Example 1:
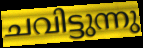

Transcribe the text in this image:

ചവിട്ടുന്നു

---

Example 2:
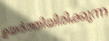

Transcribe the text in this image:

ഉയർത്തിയിരിക്കുന്ന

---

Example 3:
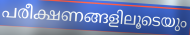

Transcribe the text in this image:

പരീക്ഷണങ്ങളിലൂടെയും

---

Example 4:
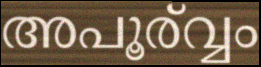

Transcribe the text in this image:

അപൂര്വ്വം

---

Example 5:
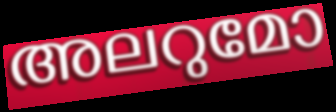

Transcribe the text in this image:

അലറുമോ